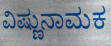
ವಿಷ್ಣುನಾಮಕ